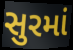
સુરમાં